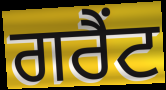
ਗਰੈਂਟ